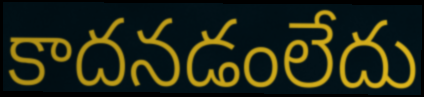
కాదనడంలేదు